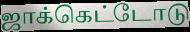
ஜாக்கெட்டோடு